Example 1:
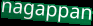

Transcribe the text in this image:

nagappan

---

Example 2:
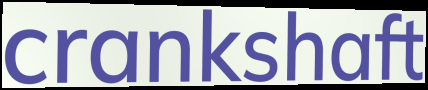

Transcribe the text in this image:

crankshaft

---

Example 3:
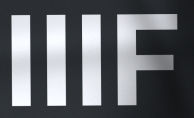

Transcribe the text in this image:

IIIF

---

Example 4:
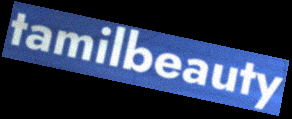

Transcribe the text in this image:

tamilbeauty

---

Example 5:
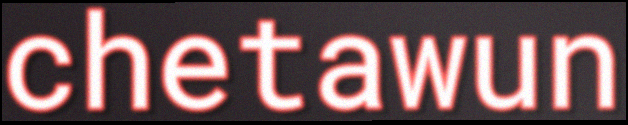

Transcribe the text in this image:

chetawun